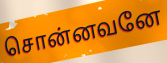
சொன்னவனே